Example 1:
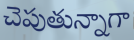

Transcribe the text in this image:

చెపుతున్నాగా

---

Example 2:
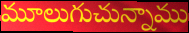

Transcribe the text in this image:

మూలుగుచున్నాము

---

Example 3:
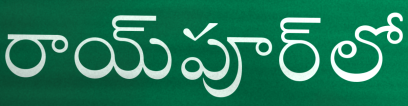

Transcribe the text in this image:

రాయ్‌పూర్‌లో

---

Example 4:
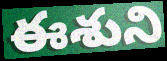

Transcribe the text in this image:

ఈశుని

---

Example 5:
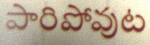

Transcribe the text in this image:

పారిపోవుట